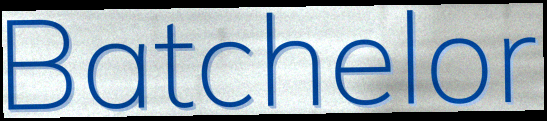
Batchelor